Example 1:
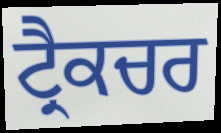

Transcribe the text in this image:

ਟ੍ਰੈਕਚਰ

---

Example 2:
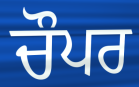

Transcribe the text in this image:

ਚੌਪਰ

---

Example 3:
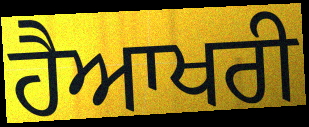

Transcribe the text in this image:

ਹੈਆਖਰੀ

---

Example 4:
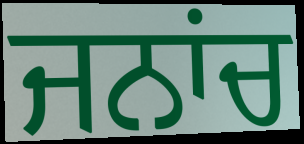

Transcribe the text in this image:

ਜਨਾਂਚ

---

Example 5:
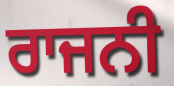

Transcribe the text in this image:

ਰਾਜਨੀ